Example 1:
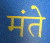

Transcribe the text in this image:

मंते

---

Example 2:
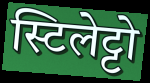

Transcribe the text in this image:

स्टिलेट्टो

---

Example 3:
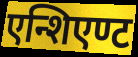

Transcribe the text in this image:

एन्शिएण्ट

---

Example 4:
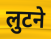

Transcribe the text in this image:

लुटने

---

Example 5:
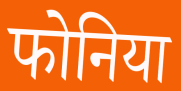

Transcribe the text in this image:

फोनिया